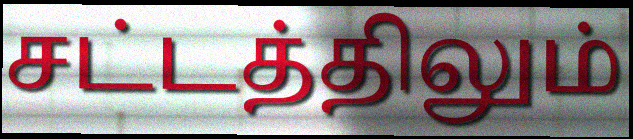
சட்டத்திலும்